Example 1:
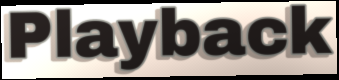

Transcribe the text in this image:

Playback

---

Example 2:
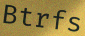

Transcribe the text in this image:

Btrfs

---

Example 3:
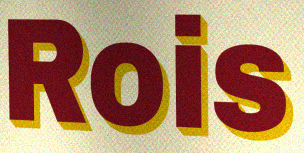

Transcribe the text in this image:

Rois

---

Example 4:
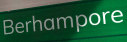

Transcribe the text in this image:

Berhampore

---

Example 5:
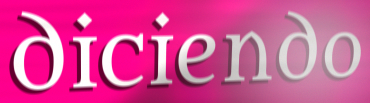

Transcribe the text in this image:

diciendo